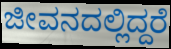
ಜೀವನದಲ್ಲಿದ್ದರೆ